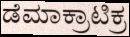
ಡೆಮಾಕ್ರಾಟಿಕ್ರ